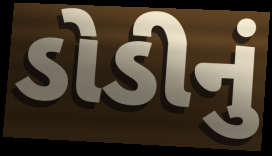
ડોડીનું